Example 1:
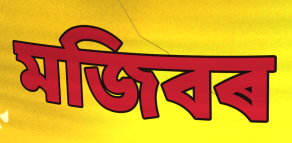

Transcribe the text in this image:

মজিবৰ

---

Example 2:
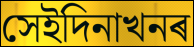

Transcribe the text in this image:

সেইদিনাখনৰ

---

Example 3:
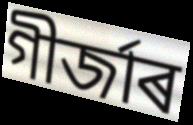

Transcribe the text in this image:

গীৰ্জাৰ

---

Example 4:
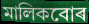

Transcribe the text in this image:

মালিকবোৰ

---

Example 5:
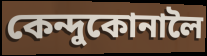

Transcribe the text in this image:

কেন্দুকোনালৈ